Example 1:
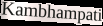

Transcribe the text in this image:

Kambhampati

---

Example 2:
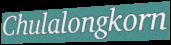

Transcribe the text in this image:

Chulalongkorn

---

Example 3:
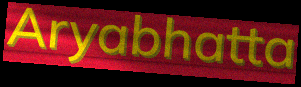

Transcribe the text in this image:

Aryabhatta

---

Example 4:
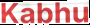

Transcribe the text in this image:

Kabhu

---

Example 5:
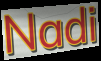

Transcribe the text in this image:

Nadi